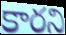
కారని